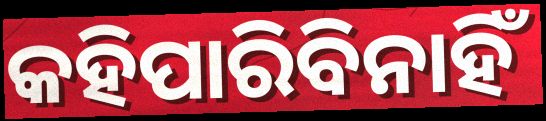
କହିପାରିବିନାହିଁ